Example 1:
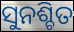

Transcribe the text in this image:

ସୁନଶ୍ଚିତ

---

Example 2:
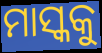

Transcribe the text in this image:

ମାସ୍କକୁ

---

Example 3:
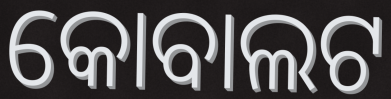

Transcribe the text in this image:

କୋବାଲଟ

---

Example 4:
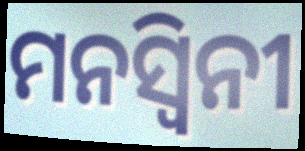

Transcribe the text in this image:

ମନସ୍ୱିନୀ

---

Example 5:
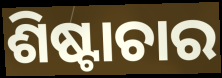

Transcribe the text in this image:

ଶିଷ୍ଟାଚାର